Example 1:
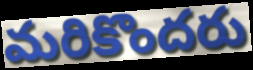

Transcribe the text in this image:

మరికొందరు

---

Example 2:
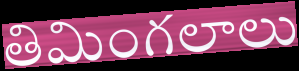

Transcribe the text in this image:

తిమింగలాలు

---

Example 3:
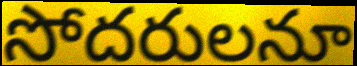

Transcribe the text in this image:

సోదరులనూ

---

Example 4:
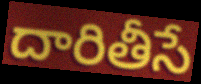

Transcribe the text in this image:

దారితీసే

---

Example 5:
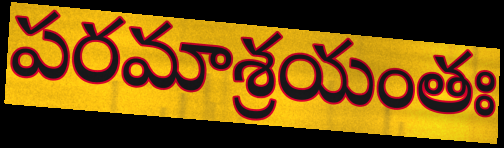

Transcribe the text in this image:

పరమాశ్రయంతః